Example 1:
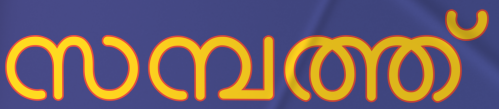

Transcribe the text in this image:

സമ്പത്ത്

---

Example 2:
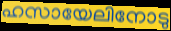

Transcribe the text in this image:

ഹസായേലിനോടു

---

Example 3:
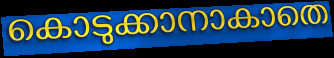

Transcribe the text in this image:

കൊടുക്കാനാകാതെ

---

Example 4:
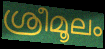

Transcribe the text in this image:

ശ്രീമൂലം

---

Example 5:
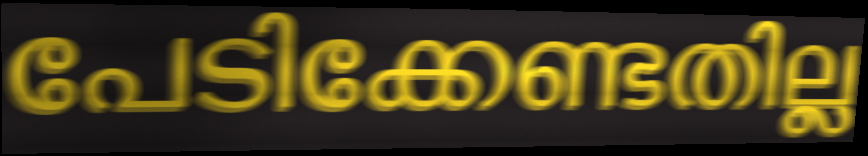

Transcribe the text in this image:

പേടിക്കേണ്ടതില്ല